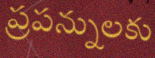
ప్రపన్నులకు